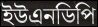
ইউএনডিপি